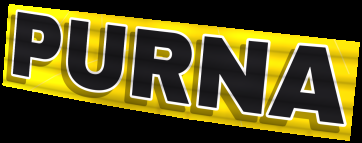
PURNA